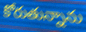
కోరుతున్నాను